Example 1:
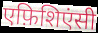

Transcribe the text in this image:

एफ़िशिएंसी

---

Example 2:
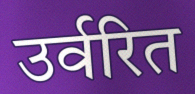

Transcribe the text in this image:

उर्वरित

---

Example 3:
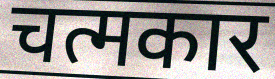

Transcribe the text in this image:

चत्मकार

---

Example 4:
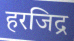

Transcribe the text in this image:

हरजिद्र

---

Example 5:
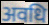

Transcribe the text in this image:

अवधि